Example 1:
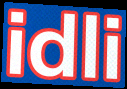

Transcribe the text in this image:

idli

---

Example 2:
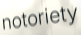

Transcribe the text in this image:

notoriety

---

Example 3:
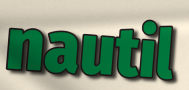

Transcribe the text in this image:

nautil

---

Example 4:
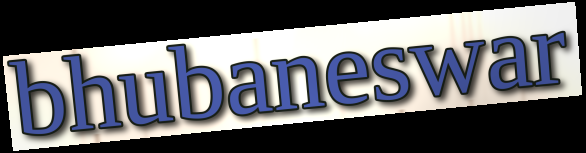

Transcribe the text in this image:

bhubaneswar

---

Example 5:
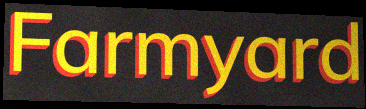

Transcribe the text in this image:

Farmyard